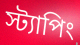
স্ট্যাপিং